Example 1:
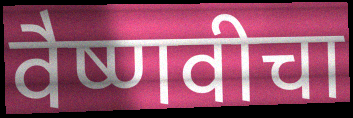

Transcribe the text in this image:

वैष्णवीचा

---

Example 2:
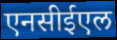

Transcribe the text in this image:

एनसीईएल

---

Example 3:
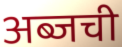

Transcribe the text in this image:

अब्जची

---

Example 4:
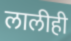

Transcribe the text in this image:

लालीही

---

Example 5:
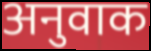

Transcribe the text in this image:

अनुवाक